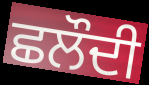
ਛਲੌਦੀ